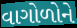
વાગોળોને